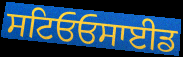
ਸਟਿਓਓਸਾਈਡ